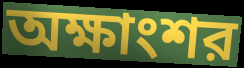
অক্ষাংশর